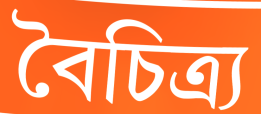
বৈচিত্ৰ্য